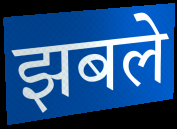
झबले